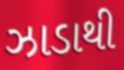
ઝાડાથી